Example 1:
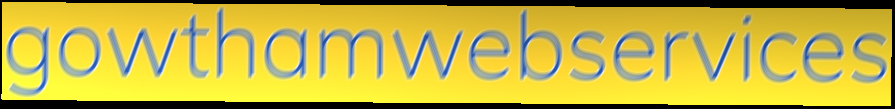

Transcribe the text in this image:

gowthamwebservices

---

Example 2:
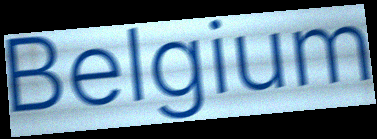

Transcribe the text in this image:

Belgium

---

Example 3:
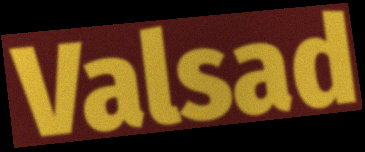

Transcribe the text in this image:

Valsad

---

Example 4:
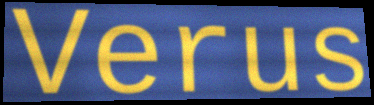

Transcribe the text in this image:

Verus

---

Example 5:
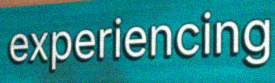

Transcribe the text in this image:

experiencing